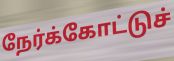
நேர்க்கோட்டுச்